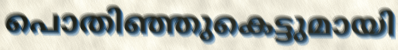
പൊതിഞ്ഞുകെട്ടുമായി